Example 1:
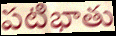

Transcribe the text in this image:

పటిభాతు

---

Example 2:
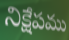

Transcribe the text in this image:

నిక్షేపము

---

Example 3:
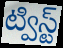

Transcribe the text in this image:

ట్విస్ట్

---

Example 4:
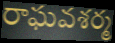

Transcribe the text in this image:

రాఘవశర్మ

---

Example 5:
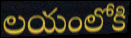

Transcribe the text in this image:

లయంలోకి